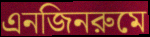
এনজিনরুমে